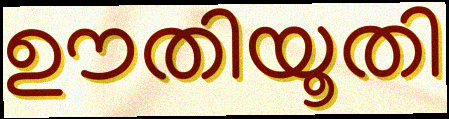
ഊതിയൂതി